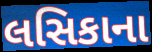
લસિકાના